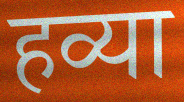
हव्या